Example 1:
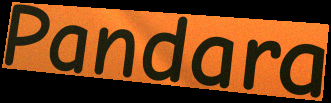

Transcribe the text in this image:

Pandara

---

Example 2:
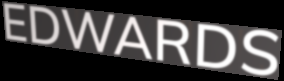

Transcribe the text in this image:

EDWARDS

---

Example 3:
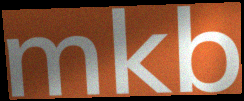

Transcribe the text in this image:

mkb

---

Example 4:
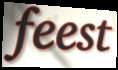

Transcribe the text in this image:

feest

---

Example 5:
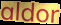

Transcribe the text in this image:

aldor